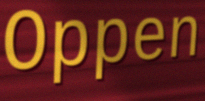
Oppen